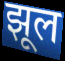
झूल